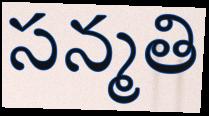
సన్మతి